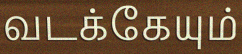
வடக்கேயும்